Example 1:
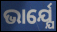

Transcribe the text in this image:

ଭାର୍ଯ୍ଯେ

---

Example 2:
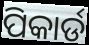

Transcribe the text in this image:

ପିକାର୍ଡ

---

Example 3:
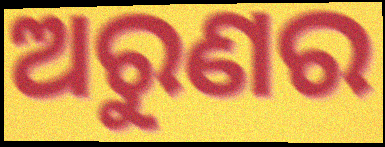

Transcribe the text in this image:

ଅରୁଣର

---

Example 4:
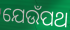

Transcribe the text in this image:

ଯେଉଁପଥ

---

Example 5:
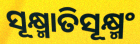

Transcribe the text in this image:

ସୂକ୍ଷ୍ମାତିସୂକ୍ଷ୍ମଂ